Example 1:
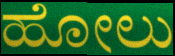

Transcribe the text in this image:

ಹೋಲು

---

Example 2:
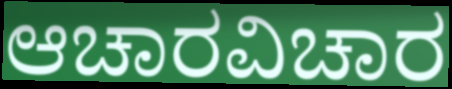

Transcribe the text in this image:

ಆಚಾರವಿಚಾರ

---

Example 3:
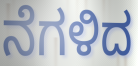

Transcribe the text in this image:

ನೆಗಳಿದ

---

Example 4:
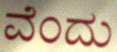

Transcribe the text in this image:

ವೆಂದು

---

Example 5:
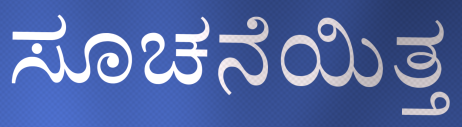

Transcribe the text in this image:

ಸೂಚನೆಯಿತ್ತ